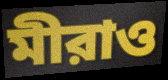
মীরাও